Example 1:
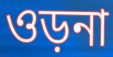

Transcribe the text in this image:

ওড়না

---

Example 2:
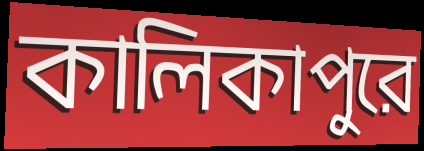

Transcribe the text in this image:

কালিকাপুরে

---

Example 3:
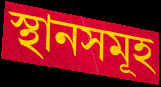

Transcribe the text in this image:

স্থানসমূহ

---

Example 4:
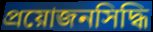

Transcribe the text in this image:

প্রয়োজনসিদ্ধি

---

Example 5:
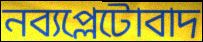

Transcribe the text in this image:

নব্যপ্লেটোবাদ